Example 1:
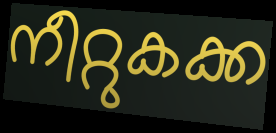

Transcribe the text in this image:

നീറ്റുകക്ക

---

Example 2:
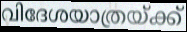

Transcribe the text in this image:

വിദേശയാത്രയ്ക്ക്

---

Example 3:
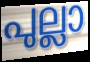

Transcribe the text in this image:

പുല്ലാ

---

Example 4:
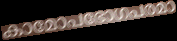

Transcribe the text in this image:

കാമോപഭോഗപരമാ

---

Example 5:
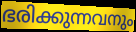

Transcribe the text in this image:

ഭരിക്കുന്നവനും